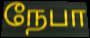
நேபா